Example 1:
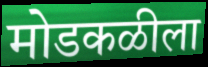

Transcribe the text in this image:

मोडकळीला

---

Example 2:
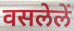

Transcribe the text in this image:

वसलेलें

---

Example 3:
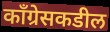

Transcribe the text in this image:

काँग्रेसकडील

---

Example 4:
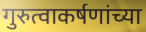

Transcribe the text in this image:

गुरुत्वाकर्षणांच्या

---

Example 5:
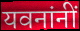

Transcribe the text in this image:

यवनांनीं